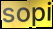
sopi